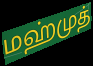
மஹ்முத்